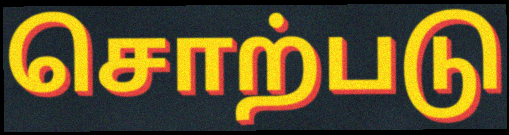
சொற்படு